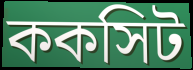
ককসিট